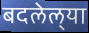
बदलेल्या